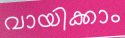
വായിക്കാം